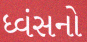
ધ્વંસનો